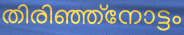
തിരിഞ്ഞ്നോട്ടം